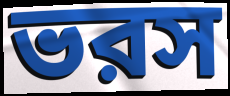
ভরস